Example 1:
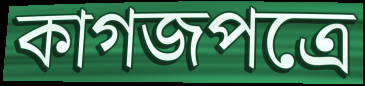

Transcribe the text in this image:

কাগজপত্রে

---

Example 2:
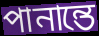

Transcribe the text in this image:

পানান্তে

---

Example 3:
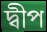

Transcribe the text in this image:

দ্বীপ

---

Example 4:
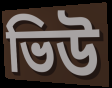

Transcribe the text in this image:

ভিউ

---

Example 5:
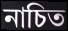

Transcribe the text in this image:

নাচিত